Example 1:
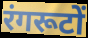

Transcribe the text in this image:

रंगरूटों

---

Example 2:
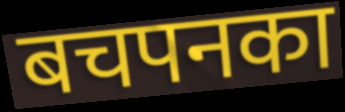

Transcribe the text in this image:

बचपनका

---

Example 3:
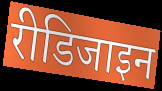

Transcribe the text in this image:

रीडिजाइन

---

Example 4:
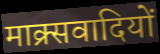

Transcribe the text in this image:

माक्र्सवादियों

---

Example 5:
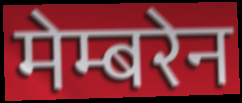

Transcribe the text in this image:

मेम्बरेन